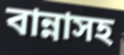
বান্নাসহ